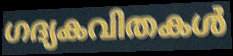
ഗദ്യകവിതകൾ